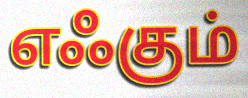
எஃகும்